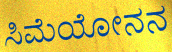
ಸಿಮೆಯೋನನ